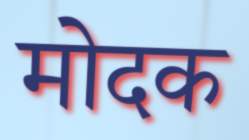
मोदक